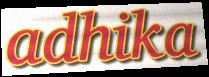
adhika